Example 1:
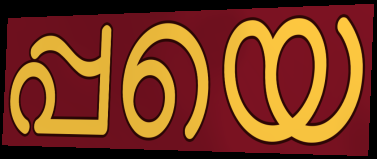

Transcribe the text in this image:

പ്പയെ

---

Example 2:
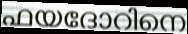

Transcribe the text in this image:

ഫയദോറിനെ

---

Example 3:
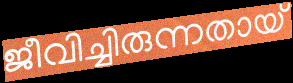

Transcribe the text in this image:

ജീവിച്ചിരുന്നതായ്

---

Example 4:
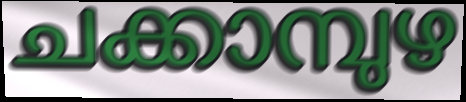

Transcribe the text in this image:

ചക്കാമ്പുഴ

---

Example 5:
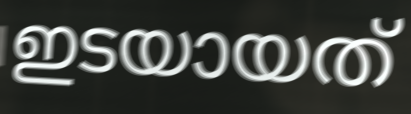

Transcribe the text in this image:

ഇടയായത്